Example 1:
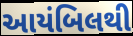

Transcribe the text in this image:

આયંબિલથી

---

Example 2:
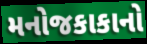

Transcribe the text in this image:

મનોજકાકાનો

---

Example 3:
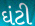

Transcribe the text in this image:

ઘંટી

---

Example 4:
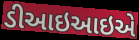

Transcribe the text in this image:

ડીઆઇઆઇએ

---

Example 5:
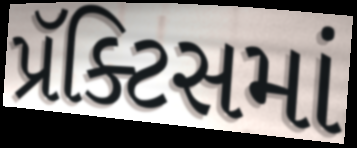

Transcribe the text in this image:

પ્રૅક્ટિસમાં